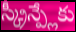
స్క్రీన్ప్లేకు